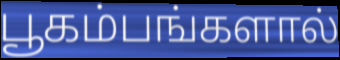
பூகம்பங்களால்